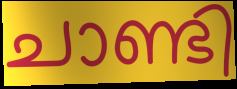
ചാണ്ടി